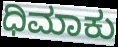
ಧಿಮಾಕು